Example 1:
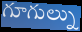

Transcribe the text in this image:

గూగుల్ను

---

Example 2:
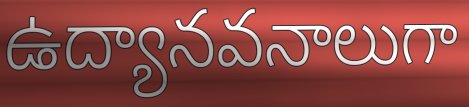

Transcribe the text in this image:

ఉద్యానవనాలుగా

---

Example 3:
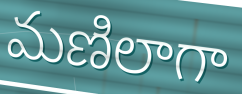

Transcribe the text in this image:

మణిలాగా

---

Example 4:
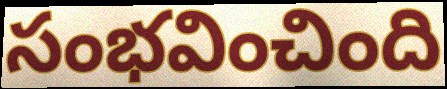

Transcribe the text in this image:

సంభవించింది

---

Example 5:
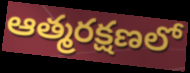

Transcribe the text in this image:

ఆత్మరక్షణలో